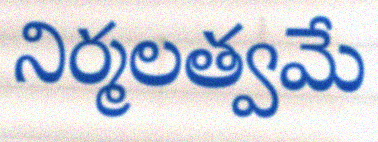
నిర్మలత్వమే